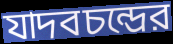
যাদবচন্দ্রের